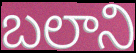
బలాని